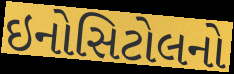
ઇનોસિટોલનો